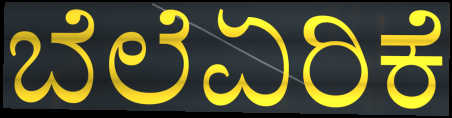
ಬೆಲೆಏರಿಕೆ